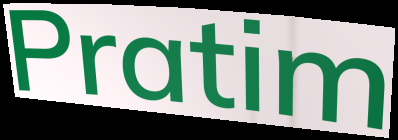
Pratim